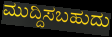
ಮುದ್ದಿಸಬಹುದು